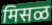
मिसळ